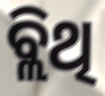
ବ୍ଲିଥି